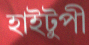
হাইটুপী